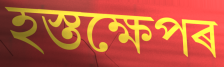
হস্তক্ষেপৰ